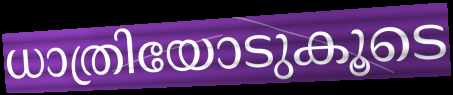
ധാത്രിയോടുകൂടെ